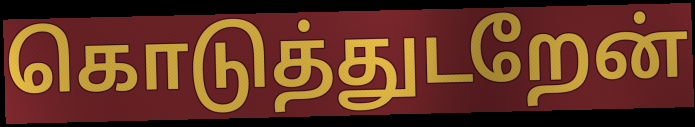
கொடுத்துடறேன்